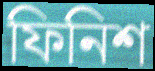
ফিনিশ